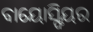
ବାୟୋସ୍ଫିୟର